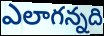
ఎలాగన్నది